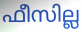
ഫീസില്ല